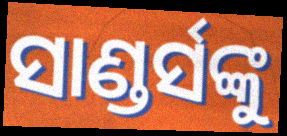
ସାଣ୍ଡର୍ସଙ୍କୁ